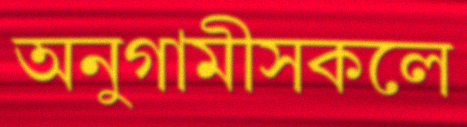
অনুগামীসকলে